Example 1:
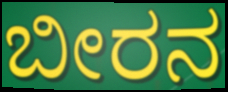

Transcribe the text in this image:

ಬೀರನ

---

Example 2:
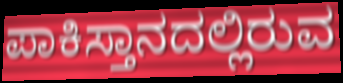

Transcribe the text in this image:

ಪಾಕಿಸ್ತಾನದಲ್ಲಿರುವ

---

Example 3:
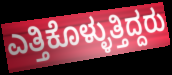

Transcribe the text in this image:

ಎತ್ತಿಕೊಳ್ಳುತ್ತಿದ್ದರು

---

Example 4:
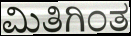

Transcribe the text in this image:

ಮಿತಿಗಿಂತ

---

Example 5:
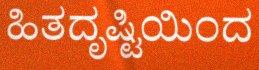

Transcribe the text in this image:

ಹಿತದೃಷ್ಟಿಯಿಂದ